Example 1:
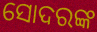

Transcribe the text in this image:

ସୋଦରଙ୍କ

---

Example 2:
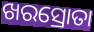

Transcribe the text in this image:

ଖରସ୍ରୋତା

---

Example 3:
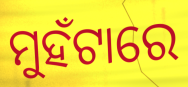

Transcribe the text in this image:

ମୁହଁଟାରେ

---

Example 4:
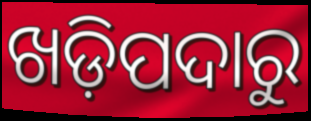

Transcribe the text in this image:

ଖଡ଼ିପଦାରୁ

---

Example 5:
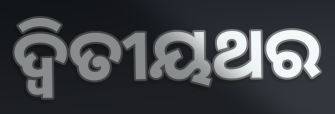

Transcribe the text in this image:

ଦ୍ବିତୀୟଥର